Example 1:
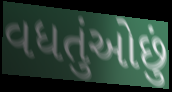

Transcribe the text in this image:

વધતુંઓછું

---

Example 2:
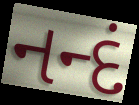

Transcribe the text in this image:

નન્દં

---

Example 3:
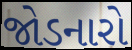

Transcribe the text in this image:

જોડનારો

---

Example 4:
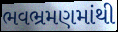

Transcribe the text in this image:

ભવભ્રમણમાંથી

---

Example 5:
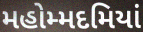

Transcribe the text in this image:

મહોમ્મદમિયાં